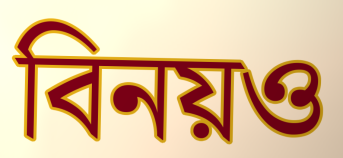
বিনয়ও